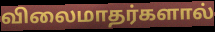
விலைமாதர்களால்